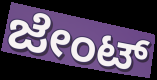
ಜೇಂಟ್